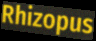
Rhizopus